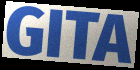
GITA